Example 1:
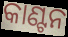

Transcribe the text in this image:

କାଣ୍ଟନ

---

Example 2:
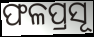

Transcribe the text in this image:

ଫଳପ୍ରସୂ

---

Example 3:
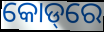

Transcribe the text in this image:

କୋଡ୍‌ରେ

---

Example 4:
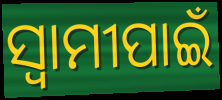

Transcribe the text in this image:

ସ୍ୱାମୀପାଇଁ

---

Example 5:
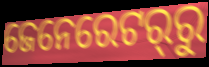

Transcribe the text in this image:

ଜେନେରେଟର୍‌ରୁ